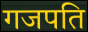
गजपति